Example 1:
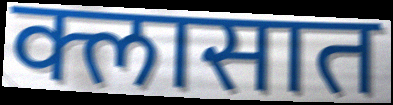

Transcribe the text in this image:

क्लासात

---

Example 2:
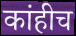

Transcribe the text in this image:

कांहीच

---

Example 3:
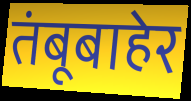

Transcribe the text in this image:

तंबूबाहेर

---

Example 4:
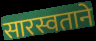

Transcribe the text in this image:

सारस्वताने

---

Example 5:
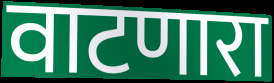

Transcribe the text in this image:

वाटणारा